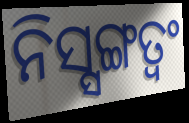
ନିସ୍ସଙ୍ଗତ୍ୱଂ